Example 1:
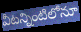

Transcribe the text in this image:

వీటన్నింటిలోనూ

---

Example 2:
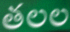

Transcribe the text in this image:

తలల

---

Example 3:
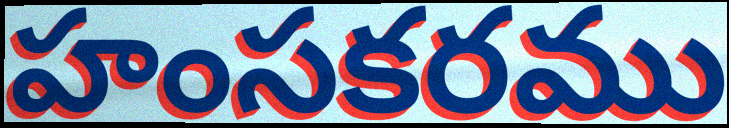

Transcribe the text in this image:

హంసకరము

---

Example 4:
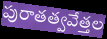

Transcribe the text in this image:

పురాతత్వవేత్తల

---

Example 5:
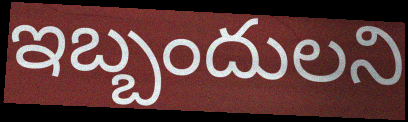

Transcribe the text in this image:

ఇబ్బందులని